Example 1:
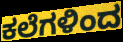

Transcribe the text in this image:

ಕಲೆಗಳಿಂದ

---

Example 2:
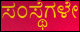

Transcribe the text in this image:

ಸಂಸ್ಥೆಗಳೇ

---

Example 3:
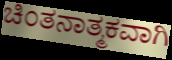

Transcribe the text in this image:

ಚಿಂತನಾತ್ಮಕವಾಗಿ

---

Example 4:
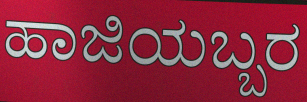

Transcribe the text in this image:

ಹಾಜಿಯಬ್ಬರ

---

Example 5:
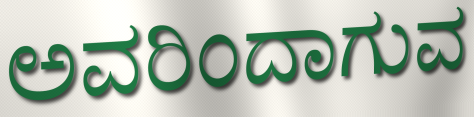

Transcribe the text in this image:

ಅವರಿಂದಾಗುವ